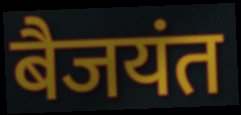
बैजयंत